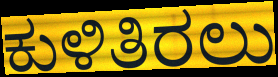
ಕುಳಿತಿರಲು